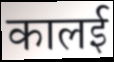
कालई